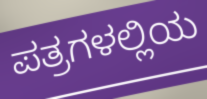
ಪತ್ರಗಳಲ್ಲಿಯ